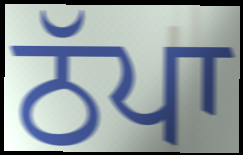
ਠੱਪਾ